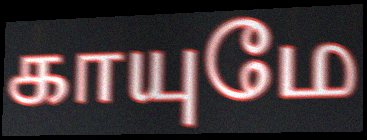
காயுமே